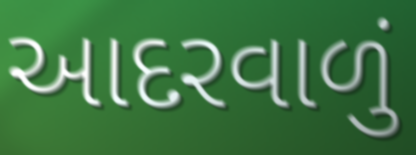
આદરવાળું